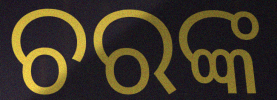
ଚରଙ୍କ